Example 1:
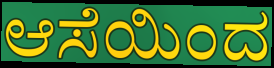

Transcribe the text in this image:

ಆಸೆಯಿಂದ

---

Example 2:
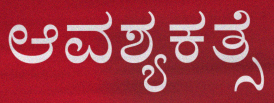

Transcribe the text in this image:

ಆವಶ್ಯಕತ್ಸೆ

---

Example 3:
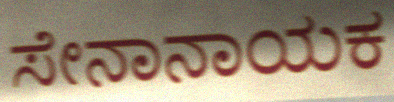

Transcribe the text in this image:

ಸೇನಾನಾಯಕ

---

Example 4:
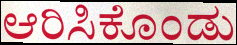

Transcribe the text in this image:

ಆರಿಸಿಕೊಂಡು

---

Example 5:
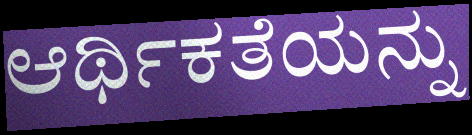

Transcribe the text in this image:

ಆರ್ಥಿಕತೆಯನ್ನು